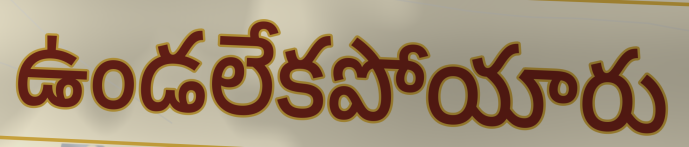
ఉండలేకపోయారు